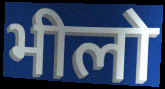
भीलो